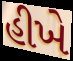
હીખે